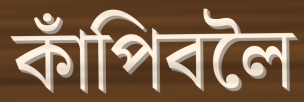
কাঁপিবলৈ